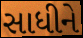
સાધીને